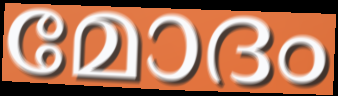
മോദം